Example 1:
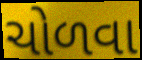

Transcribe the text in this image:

ચોળવા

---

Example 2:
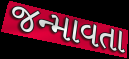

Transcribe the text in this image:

જન્માવતા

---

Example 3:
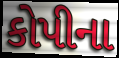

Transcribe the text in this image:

કોપીના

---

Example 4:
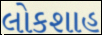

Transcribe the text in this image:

લોકશાહ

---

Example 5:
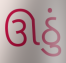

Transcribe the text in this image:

ઊઠું